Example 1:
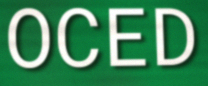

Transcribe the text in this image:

OCED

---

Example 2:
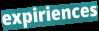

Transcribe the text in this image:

expiriences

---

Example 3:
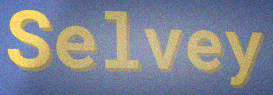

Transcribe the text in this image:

Selvey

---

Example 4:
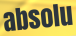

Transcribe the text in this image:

absolu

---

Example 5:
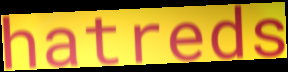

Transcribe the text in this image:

hatreds